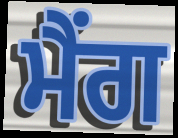
ਮੈਂਗ